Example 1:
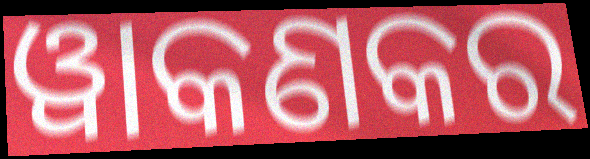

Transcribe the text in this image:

ୱାକଣକର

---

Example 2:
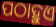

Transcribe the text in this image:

ପଠାହୁଏ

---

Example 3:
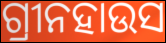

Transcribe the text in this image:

ଗ୍ରୀନହାଉସ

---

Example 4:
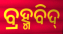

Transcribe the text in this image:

ବ୍ରହ୍ମବିଦ୍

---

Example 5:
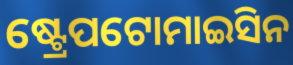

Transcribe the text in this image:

ଷ୍ଟ୍ରେପଟୋମାଇସିନ